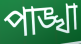
পাঙ্খা